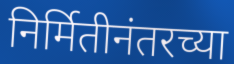
निर्मितीनंतरच्या